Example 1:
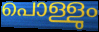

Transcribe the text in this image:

പൊള്ളും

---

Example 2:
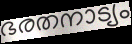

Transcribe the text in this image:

ഭരതനാട്യം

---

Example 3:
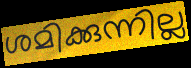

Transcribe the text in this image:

ശമിക്കുന്നില്ല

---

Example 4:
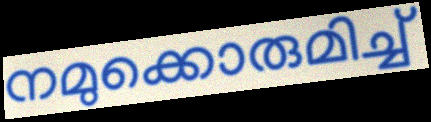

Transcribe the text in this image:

നമുക്കൊരുമിച്ച്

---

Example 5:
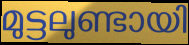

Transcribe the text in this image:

മുട്ടലുണ്ടായി